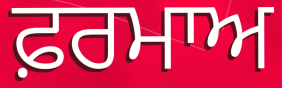
ਫ਼ਰਮਾਅ